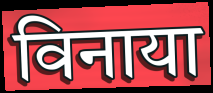
विनाया